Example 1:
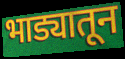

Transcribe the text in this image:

भाड्यातून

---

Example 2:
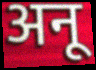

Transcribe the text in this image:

अनू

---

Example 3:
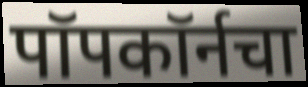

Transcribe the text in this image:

पॉपकॉर्नचा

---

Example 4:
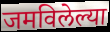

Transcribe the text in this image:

जमविलेल्या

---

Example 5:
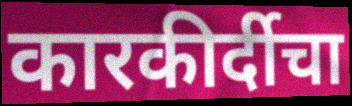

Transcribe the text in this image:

कारकीर्दीचा